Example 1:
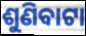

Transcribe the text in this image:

ଶୁଣିବାଟା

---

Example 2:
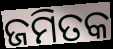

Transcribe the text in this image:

ଜମିତକ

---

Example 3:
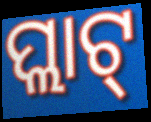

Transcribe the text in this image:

ପ୍ଲାଟ୍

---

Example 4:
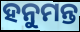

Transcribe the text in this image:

ହନୁମନ୍ତ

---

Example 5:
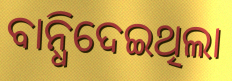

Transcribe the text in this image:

ବାନ୍ଧିଦେଇଥିଲା